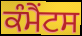
ਕੰਮੈਂਟਸ